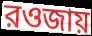
রওজায়